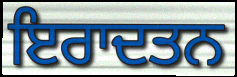
ਇਰਾਦਤਨ